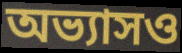
অভ্যাসও